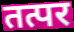
तत्पर